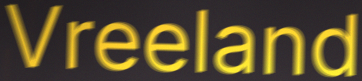
Vreeland